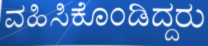
ವಹಿಸಿಕೊಂಡಿದ್ದರು